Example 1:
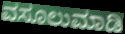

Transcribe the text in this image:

ವಸೂಲುಮಾಡಿ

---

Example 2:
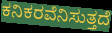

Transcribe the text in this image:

ಕನಿಕರವೆನಿಸುತ್ತದೆ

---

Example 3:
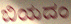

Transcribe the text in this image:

ಬಿಯದಂ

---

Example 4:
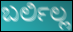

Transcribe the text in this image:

ಬರ್ಲಿಲ್ಲ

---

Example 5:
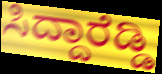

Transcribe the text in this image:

ಸಿದ್ದಾರೆಡ್ಡಿ